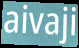
aivaji